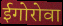
ईगोरोवा